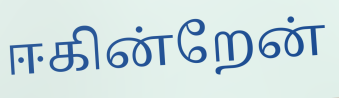
ஈகின்றேன்